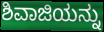
ಶಿವಾಜಿಯನ್ನು